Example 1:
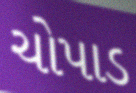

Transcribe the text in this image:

ચોપાડ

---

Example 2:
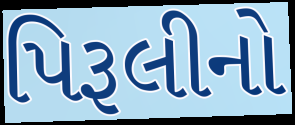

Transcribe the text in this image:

પિરૂલીનો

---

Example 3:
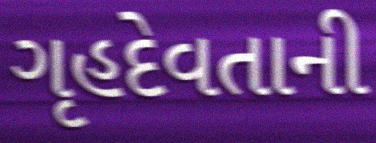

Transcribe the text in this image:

ગૃહદેવતાની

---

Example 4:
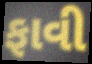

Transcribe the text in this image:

ફાવી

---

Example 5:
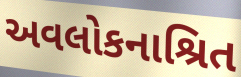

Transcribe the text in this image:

અવલોકનાશ્રિત